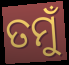
ତମୁଁ